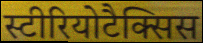
स्टीरियोटैक्सिस